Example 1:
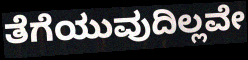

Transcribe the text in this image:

ತೆಗೆಯುವುದಿಲ್ಲವೇ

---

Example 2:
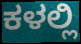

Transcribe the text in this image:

ಕಳಲ್ಲಿ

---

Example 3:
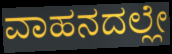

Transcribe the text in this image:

ವಾಹನದಲ್ಲೇ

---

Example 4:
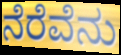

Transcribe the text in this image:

ನೆರೆವೆನು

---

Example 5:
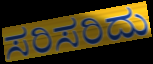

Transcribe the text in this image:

ಸರಿಸರಿದು